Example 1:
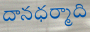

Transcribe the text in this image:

దానధర్మాది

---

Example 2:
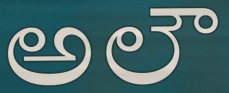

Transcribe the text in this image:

అలౌ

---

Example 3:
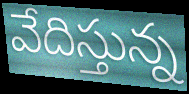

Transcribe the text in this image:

వేదిస్తున్న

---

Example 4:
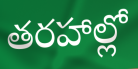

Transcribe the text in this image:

తరహాల్లో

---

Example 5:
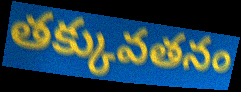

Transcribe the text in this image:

తక్కువతనం